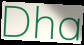
Dha